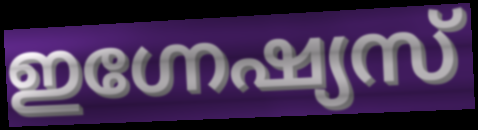
ഇഗ്നേഷ്യസ്